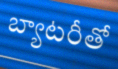
బ్యాటరీతో